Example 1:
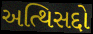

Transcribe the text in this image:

અત્થિસદ્દો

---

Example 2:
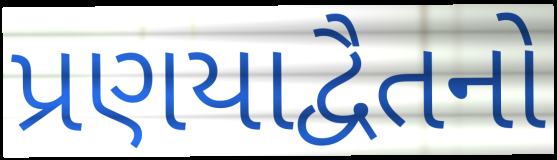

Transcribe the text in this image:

પ્રણયાદ્વૈતનો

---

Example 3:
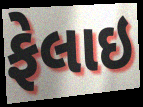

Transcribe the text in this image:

ફેલાઇ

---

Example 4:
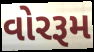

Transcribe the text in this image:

વોરરૂમ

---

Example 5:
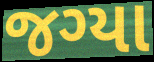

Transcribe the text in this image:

જગ્યા